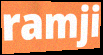
ramji